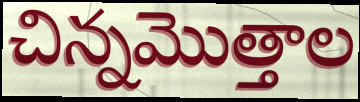
చిన్నమొత్తాల